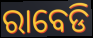
ରାବେଡି